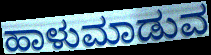
ಹಾಳುಮಾಡುವ